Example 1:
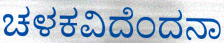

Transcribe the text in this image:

ಚಳಕವಿದೆಂದನಾ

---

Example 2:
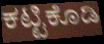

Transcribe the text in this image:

ಕಟ್ಟಿಕೊಡಿ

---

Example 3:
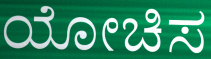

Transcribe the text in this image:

ಯೋಚಿಸ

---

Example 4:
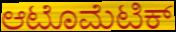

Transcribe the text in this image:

ಆಟೊಮೆಟಿಕ್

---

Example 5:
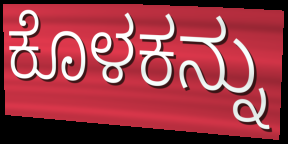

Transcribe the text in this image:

ಕೊಳಕನ್ನು